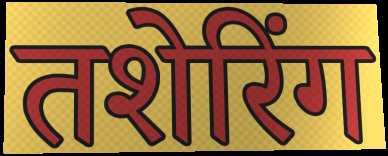
तशेरिंग